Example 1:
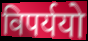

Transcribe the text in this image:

विपर्ययो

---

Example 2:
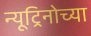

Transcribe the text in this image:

न्यूट्रिनोच्या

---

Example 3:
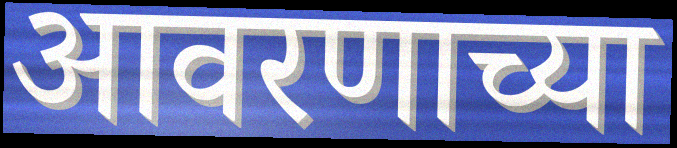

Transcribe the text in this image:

आवरणाच्या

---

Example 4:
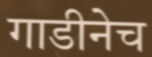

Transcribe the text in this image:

गाडीनेच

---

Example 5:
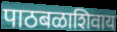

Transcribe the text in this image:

पाठबळाशिवाय